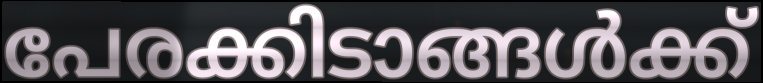
പേരക്കിടാങ്ങൾക്ക്